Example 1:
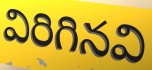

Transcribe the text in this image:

విరిగినవి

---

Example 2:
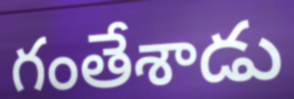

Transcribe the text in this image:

గంతేశాడు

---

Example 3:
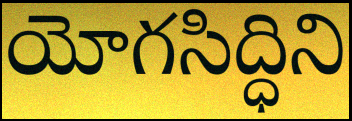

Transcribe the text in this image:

యోగసిద్ధిని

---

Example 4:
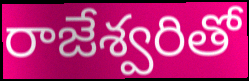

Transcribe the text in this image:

రాజేశ్వరితో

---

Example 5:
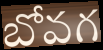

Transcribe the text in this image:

బోవగ